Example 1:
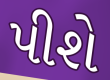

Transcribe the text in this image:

પીશે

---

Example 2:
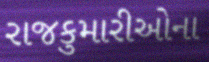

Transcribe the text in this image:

રાજકુમારીઓના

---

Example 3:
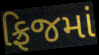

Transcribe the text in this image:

ફ્રિજમાં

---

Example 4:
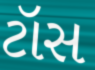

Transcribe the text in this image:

ટૉસ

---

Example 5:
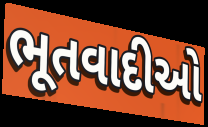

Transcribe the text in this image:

ભૂતવાદીઓ